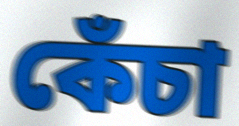
কেঁচা